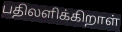
பதிலளிக்கிறாள்